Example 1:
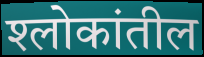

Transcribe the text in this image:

श्लोकांतील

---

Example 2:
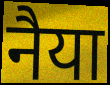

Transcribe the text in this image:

नैया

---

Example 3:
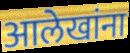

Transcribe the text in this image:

आलेखांना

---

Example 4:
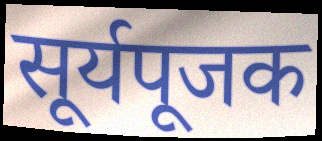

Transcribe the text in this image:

सूर्यपूजक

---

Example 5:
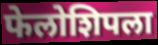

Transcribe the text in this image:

फेलोशिपला